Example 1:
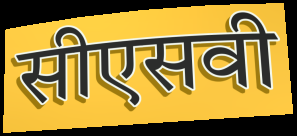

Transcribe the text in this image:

सीएसवी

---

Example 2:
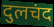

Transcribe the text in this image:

दुलचंद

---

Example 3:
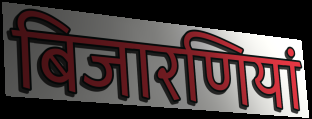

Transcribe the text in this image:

बिजारणियां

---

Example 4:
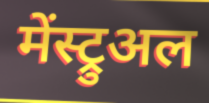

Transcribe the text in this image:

मेंस्ट्रुअल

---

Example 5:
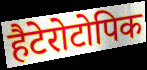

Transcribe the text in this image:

हैटेरोटोपिक